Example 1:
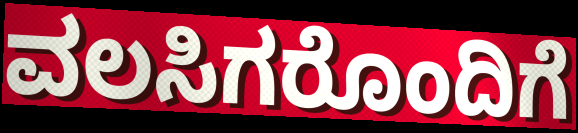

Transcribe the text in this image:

ವಲಸಿಗರೊಂದಿಗೆ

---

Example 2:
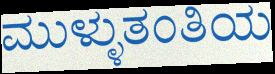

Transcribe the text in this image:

ಮುಳ್ಳುತಂತಿಯ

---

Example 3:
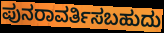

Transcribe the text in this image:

ಪುನರಾವರ್ತಿಸಬಹುದು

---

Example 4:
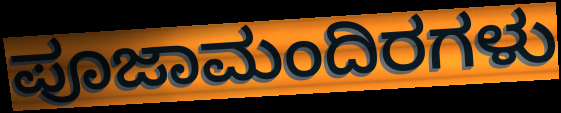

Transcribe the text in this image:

ಪೂಜಾಮಂದಿರಗಳು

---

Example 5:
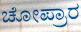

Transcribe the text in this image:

ಚೋಪ್ರಾರ